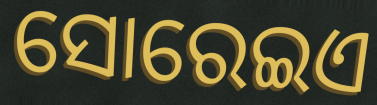
ସୋରେଇଏ